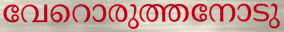
വേറൊരുത്തനോടു